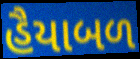
હૈયાબળ